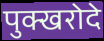
पुक्खरोदे